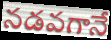
నడవగానే